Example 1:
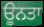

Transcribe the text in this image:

ਊਨਤਾ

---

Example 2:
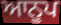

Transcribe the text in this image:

ਆਨੂਪ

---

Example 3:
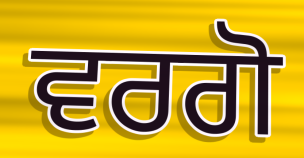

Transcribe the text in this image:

ਵਰਗੋ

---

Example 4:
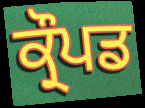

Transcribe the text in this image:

ਕ੍ਰੌਪਡ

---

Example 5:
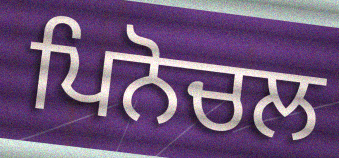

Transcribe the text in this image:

ਪਿਨੋਚਲ